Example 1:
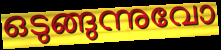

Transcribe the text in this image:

ഒടുങ്ങുന്നുവോ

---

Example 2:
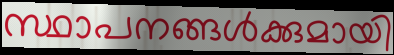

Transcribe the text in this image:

സ്ഥാപനങ്ങൾക്കുമായി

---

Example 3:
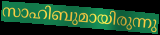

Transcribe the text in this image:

സാഹിബുമായിരുന്നു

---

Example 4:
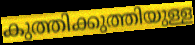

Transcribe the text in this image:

കുത്തിക്കുത്തിയുള്ള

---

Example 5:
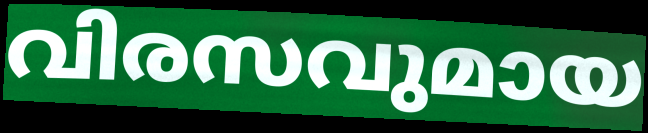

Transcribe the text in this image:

വിരസവുമായ